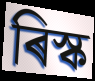
ৰিস্ক